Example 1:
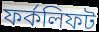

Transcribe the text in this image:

ফর্কলিফট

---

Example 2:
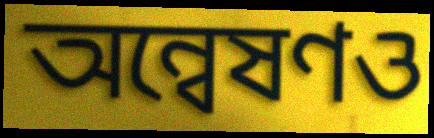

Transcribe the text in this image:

অন্বেষণও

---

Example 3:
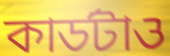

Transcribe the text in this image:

কার্ডটাও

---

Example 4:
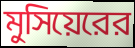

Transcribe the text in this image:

মুসিয়েরের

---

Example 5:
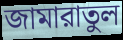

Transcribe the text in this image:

জামারাতুল